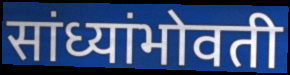
सांध्यांभोवती